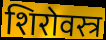
शिरोवस्त्र